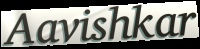
Aavishkar